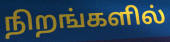
நிறங்களில்